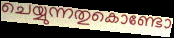
ചെയ്യുന്നതുകൊണ്ടോ